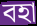
বহা